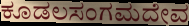
ಕೂಡಲಸಂಗಮದೇವ